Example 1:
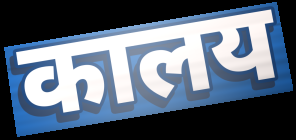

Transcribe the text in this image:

कालय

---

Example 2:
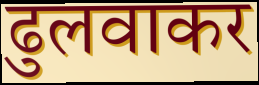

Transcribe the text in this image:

ढुलवाकर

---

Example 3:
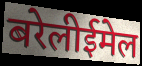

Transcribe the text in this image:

बरेलीईमेल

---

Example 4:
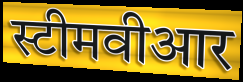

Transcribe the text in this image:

स्टीमवीआर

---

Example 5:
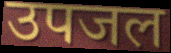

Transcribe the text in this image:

उपजल